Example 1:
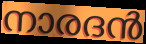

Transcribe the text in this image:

നാരദൻ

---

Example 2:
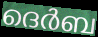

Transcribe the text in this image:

ദെർബ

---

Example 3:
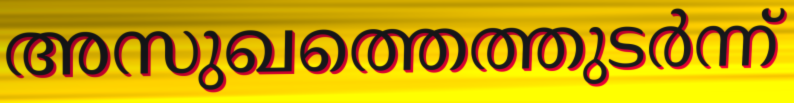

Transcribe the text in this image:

അസുഖത്തെത്തുടർന്ന്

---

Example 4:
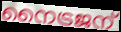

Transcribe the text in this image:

നൈട്രജന്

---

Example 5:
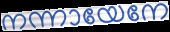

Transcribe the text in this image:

നന്നായേനേ